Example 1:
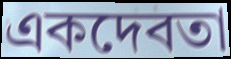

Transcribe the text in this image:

একদেবতা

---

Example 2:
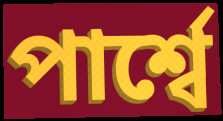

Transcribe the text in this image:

পার্শ্বে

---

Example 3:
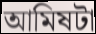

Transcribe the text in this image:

আমিষটা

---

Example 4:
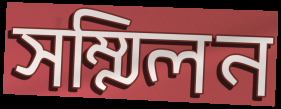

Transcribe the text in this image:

সম্মিলন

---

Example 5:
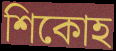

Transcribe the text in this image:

শিকোহ